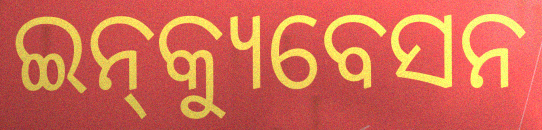
ଇନ୍‌କ୍ୟୁବେସନ